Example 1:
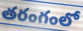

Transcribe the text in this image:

తరంగంలో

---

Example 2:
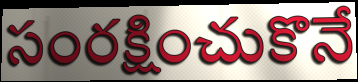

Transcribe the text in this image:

సంరక్షించుకొనే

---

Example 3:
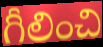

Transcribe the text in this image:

గీలించి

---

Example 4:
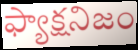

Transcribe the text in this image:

ఫ్యాక్షనిజం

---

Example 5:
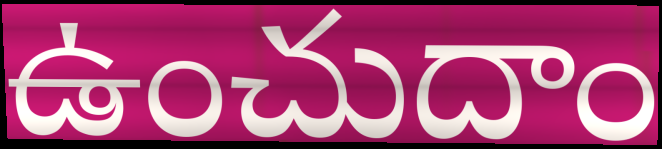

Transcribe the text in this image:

ఉంచుదాం